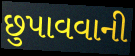
છુપાવવાની